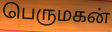
பெருமகன்